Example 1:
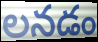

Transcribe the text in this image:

లనడం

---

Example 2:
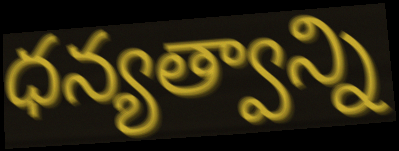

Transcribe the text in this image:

ధన్యత్వాన్ని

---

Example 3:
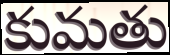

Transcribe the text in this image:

కుమతు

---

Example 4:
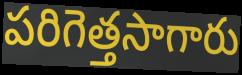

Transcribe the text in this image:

పరిగెత్తసాగారు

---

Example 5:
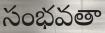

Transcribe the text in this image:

సంభవతా